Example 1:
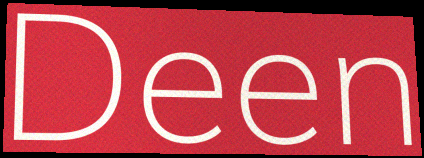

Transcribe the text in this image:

Deen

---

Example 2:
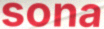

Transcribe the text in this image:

sona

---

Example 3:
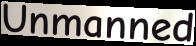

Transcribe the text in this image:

Unmanned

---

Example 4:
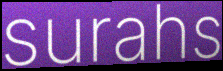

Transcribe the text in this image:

surahs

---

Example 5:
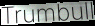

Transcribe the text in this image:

Trumbull